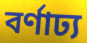
বর্ণাঢ্য